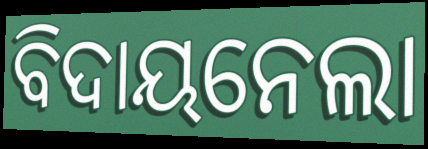
ବିଦାୟନେଲା